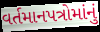
વર્તમાનપત્રોમાંનું